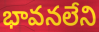
భావనలేని